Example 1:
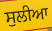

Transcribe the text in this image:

ਸੁਲੀਆ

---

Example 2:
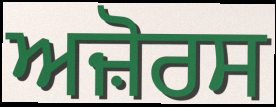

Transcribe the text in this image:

ਅਜ਼ੋਰਸ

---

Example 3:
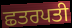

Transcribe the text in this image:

ਛਤਰਪਤੀ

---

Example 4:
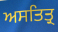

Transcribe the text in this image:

ਅਸਤਿਤ੍ਰ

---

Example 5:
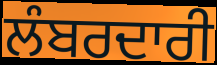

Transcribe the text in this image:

ਲੰਬਰਦਾਰੀ